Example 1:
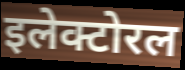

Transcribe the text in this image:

इलेक्टोरल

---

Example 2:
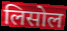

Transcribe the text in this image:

लिसोल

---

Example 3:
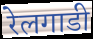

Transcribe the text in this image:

रेलगाडी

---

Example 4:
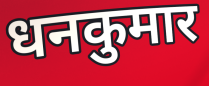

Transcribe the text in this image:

धनकुमार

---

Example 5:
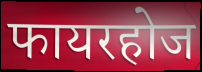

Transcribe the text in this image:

फायरहोज